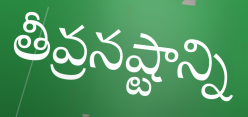
తీవ్రనష్టాన్ని